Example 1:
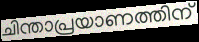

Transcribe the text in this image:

ചിന്താപ്രയാണത്തിന്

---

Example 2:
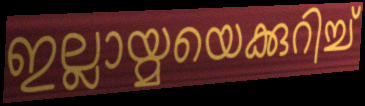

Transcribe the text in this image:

ഇല്ലായ്മയെക്കുറിച്ച്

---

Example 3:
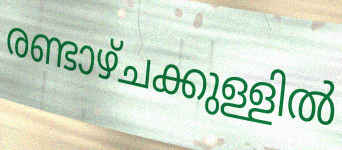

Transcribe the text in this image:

രണ്ടാഴ്ചക്കുള്ളിൽ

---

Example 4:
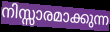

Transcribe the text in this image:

നിസ്സാരമാക്കുന്ന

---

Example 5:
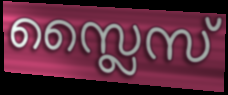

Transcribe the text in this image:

സ്ലൈസ്